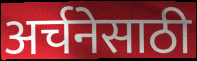
अर्चनेसाठी